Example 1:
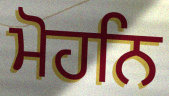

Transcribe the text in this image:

ਮੋਹਨਿ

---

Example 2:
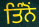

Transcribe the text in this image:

ਤਿੰਨੋਂ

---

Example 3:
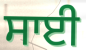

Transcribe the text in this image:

ਸਾਈ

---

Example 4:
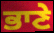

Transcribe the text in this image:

ਭਾਣੇ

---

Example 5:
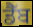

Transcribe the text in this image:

ਡੈੱਬ